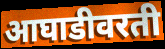
आघाडीवरती